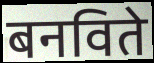
बनविते